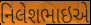
નિલેશભાઇએ